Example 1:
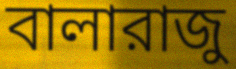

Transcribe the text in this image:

বালারাজু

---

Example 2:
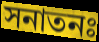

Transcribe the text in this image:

সনাতনঃ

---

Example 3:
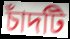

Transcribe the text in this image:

চাঁদটি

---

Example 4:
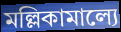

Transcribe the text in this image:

মল্লিকামাল্যে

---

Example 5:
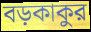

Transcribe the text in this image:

বড়কাকুর